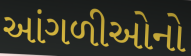
આંગળીઓનો